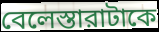
বেলেস্তারাটাকে